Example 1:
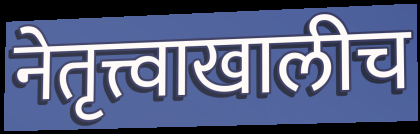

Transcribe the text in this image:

नेतृत्त्वाखालीच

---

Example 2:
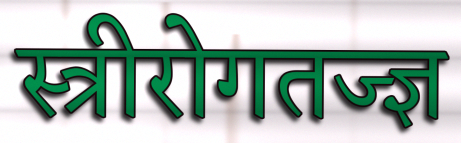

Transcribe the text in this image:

स्‍त्रीरोगतज्‍ज्ञ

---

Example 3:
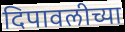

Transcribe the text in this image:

दिपावलीच्या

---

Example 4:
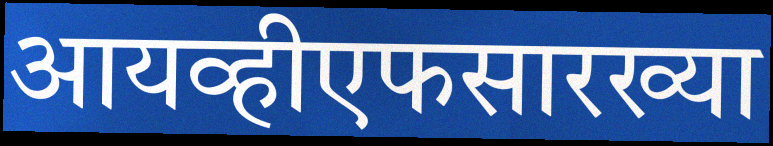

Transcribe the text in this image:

आयव्हीएफसारख्या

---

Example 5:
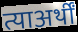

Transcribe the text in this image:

त्याअर्थीं